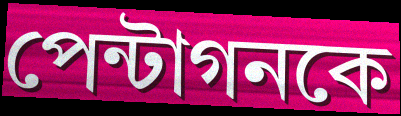
পেন্টাগনকে